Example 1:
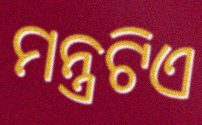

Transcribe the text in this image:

ମନ୍ତ୍ରଟିଏ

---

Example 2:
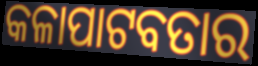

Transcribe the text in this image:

କଳାପାଟବତାର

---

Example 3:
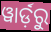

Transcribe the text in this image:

ୱାର୍ଡ଼ରୁ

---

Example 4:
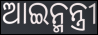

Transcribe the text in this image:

ଆଇନ୍ମନ୍ତ୍ରୀ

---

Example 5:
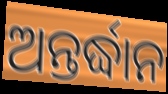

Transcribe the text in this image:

ଅନ୍ତର୍ଦ୍ଧାନ